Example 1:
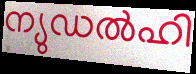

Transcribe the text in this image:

ന്യുഡൽഹി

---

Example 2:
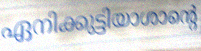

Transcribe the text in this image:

ഏനിക്കുട്ടിയാശാന്റെ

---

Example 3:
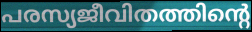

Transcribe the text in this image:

പരസ്യജീവിതത്തിന്റെ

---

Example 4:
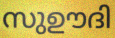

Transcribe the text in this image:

സുഊദി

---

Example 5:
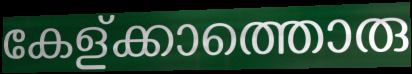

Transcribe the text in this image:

കേള്ക്കാത്തൊരു